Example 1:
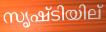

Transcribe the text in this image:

സൃഷ്ടിയില്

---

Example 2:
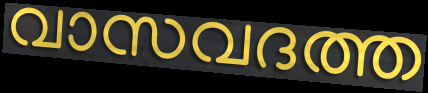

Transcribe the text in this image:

വാസവദത്ത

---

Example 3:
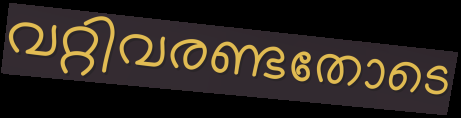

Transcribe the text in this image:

വറ്റിവരണ്ടതോടെ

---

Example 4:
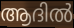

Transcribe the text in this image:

ആദിൽ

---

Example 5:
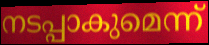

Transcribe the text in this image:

നടപ്പാകുമെന്ന്